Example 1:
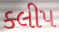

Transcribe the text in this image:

ક્લીપ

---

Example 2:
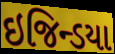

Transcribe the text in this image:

ઇજિન્ડયા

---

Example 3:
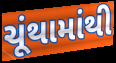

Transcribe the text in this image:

ચૂંથામાંથી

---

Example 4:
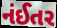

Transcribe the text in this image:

નંઈતર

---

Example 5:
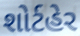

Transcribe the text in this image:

શોર્ટહેર